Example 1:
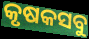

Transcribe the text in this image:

କୃଷକସବୁ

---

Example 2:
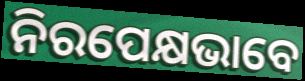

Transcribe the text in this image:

ନିରପେକ୍ଷଭାବେ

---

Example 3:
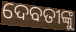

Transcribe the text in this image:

ଦେବତୀଙ୍କୁ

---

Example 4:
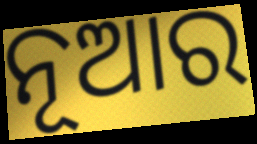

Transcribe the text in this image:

ନୂଆର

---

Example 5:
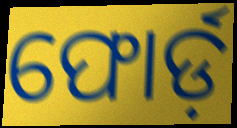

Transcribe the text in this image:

ଫୋର୍ଡ଼